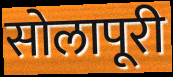
सोलापूरी